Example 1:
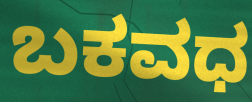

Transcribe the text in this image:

ಬಕವಧ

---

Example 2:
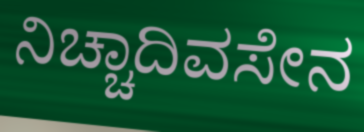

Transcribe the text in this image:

ನಿಚ್ಚಾದಿವಸೇನ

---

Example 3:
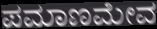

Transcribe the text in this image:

ಪಮಾಣಮೇವ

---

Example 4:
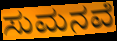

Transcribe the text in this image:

ಸುಮನವೆ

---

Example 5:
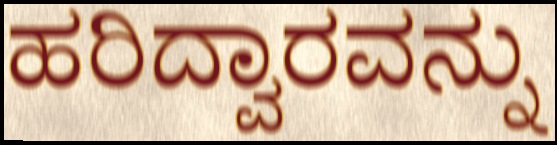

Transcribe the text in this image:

ಹರಿದ್ವಾರವನ್ನು